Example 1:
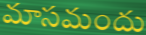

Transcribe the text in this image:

మాసమందు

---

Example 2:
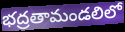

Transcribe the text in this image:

భద్రతామండలిలో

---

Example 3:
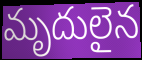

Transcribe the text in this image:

మృదులైన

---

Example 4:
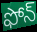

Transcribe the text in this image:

ఫోన్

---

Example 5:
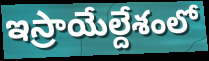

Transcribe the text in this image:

ఇస్రాయేల్దేశంలో